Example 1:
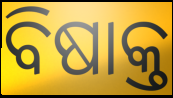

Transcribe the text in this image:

ବିଷାକ୍ତ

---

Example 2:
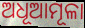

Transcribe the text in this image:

ଅଧୂଆମୂଳା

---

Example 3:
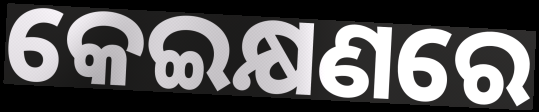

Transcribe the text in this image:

କେଇକ୍ଷଣରେ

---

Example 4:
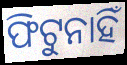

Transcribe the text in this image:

ଫିଟୁନାହିଁ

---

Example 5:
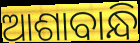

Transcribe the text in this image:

ଆଶାବାନ୍ଧି